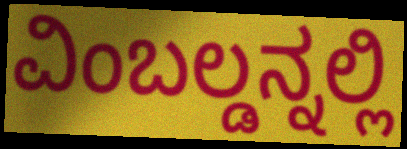
ವಿಂಬಲ್ಡನ್ನಲ್ಲಿ